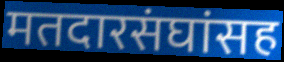
मतदारसंघांसह